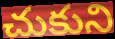
చుకుని